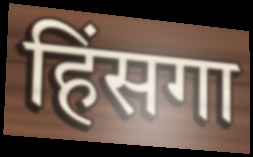
हिंसगा